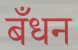
बँधन